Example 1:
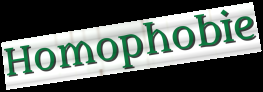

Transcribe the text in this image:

Homophobie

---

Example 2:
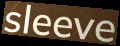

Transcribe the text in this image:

sleeve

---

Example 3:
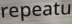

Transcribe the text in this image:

repeatu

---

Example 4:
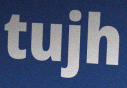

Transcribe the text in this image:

tujh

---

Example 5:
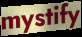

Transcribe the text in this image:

mystify